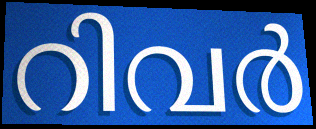
റിവർ